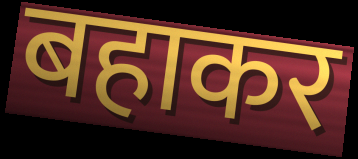
बहाकर